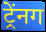
ट्र्रेंनग